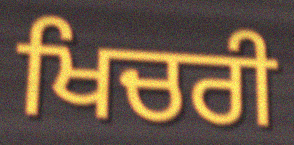
ਖਿਚਰੀ